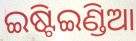
ଇଷ୍ଟିଇଣ୍ଡିଆ